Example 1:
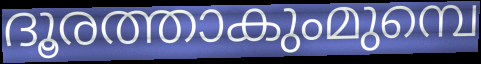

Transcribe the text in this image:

ദൂരത്താകുംമുമ്പെ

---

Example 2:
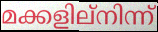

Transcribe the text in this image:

മക്കളില്നിന്ന്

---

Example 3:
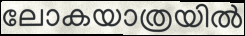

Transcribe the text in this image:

ലോകയാത്രയിൽ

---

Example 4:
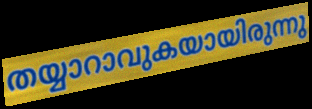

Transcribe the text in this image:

തയ്യാറാവുകയായിരുന്നു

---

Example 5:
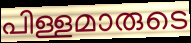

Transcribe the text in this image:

പിള്ളമാരുടെ